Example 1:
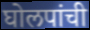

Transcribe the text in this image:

घोलपांची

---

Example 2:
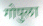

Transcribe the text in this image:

गोपुला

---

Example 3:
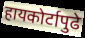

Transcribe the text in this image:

हायकोर्टापुढे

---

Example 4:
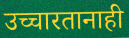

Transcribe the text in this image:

उच्चारतानाही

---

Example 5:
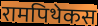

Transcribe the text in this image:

रामपिथेकस